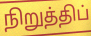
நிறுத்திப்